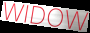
WIDOW